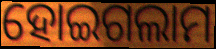
ହୋଇଗଲାମ